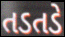
તડતડે